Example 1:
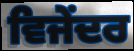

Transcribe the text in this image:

ਵਿਜੇਂਦਰ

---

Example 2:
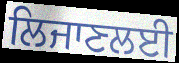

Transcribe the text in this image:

ਲਿਜਾਣਲਈ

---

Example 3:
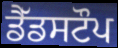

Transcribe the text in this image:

ਡੈੱਡਸਟੌਪ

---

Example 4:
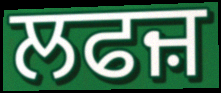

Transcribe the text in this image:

ਲਫਜ਼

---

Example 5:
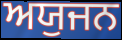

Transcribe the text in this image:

ਅਯੁਜਨ